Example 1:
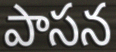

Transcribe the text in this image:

పాసన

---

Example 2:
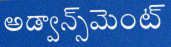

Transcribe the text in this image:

అడ్వాన్స్‌మెంట్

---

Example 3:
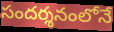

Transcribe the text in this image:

సందర్శనంలోనే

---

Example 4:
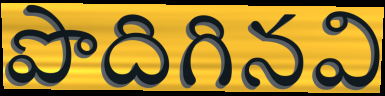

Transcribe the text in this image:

పొదిగినవి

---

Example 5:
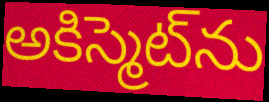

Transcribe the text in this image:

అకిస్మెట్‌ను